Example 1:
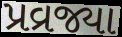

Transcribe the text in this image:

પ્રવ્રજ્યા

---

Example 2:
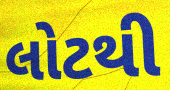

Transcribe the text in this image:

લોટથી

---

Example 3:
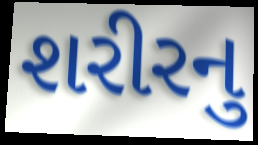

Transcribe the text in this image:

શરીરનુ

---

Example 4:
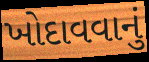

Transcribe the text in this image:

ખોદાવવાનું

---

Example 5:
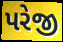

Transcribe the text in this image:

પરેજી